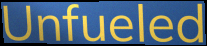
Unfueled